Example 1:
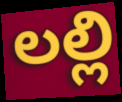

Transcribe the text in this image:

లల్లి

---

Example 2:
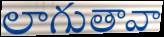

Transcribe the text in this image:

లాగుతావా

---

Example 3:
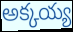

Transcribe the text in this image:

అక్కయ్య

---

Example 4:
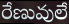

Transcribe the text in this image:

రేణువులే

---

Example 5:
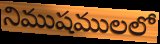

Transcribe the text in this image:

నిముషములలో